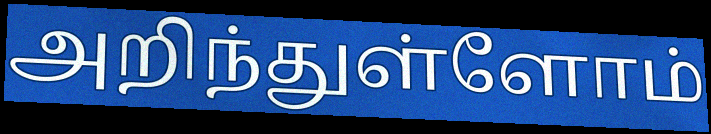
அறிந்துள்ளோம்